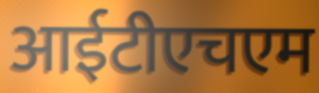
आईटीएचएम